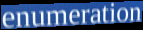
enumeration